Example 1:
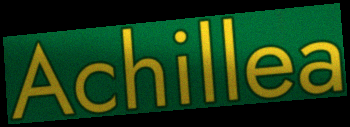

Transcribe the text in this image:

Achillea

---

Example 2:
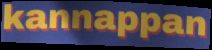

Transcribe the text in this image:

kannappan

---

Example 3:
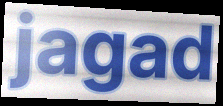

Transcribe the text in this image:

jagad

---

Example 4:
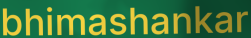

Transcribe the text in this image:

bhimashankar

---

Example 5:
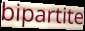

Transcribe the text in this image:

bipartite